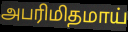
அபரிமிதமாய்